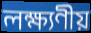
লক্ষ্যণীয়